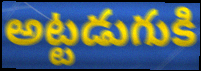
అట్టడుగుకి